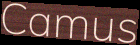
Camus